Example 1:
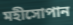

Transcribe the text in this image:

মহীসোপান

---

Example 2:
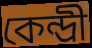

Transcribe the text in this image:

কেন্দ্রী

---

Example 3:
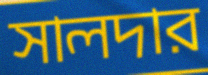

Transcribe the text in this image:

সালদার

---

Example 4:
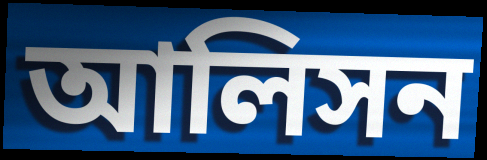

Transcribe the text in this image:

আলিসন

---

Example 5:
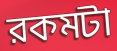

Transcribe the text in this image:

রকমটা